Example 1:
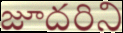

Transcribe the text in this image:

జూదరిని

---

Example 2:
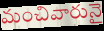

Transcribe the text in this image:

మంచివారునై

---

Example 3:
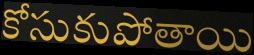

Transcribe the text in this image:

కోసుకుపోతాయి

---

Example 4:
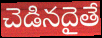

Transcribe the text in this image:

చెడినదైతే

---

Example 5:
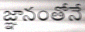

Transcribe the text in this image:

జ్ఞానంతోనే